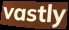
vastly